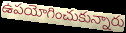
ఉపయోగించుకున్నారు